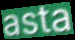
asta